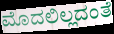
ಮೊದಲಿಲ್ಲದಂತೆ